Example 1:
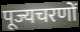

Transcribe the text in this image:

पूज्यचरणों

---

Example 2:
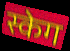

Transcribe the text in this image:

स्केग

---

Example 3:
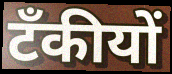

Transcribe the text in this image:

टँकीयों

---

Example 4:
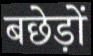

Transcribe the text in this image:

बछेड़ों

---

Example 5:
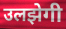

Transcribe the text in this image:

उलझेगी